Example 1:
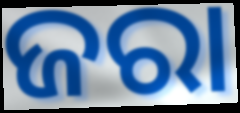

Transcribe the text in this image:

ଜରା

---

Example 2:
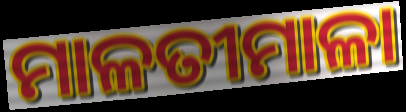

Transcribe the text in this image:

ମାଳତୀମାଳା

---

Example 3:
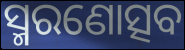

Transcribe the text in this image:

ସ୍ମରଣୋତ୍ସବ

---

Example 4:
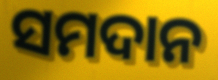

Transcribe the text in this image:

ସମଦାନ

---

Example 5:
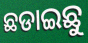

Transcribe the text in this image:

ଛଡାଇଛୁ